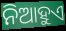
ନିଆହୁଏ